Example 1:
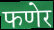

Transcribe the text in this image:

फणेर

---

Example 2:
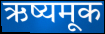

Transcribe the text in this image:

ऋष्यमूक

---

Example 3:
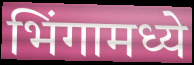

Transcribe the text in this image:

भिंगामध्ये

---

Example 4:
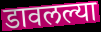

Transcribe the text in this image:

डावलल्या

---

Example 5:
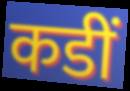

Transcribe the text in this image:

कडीं